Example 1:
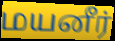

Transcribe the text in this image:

மயனீர்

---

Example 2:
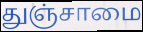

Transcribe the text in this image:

துஞ்சாமை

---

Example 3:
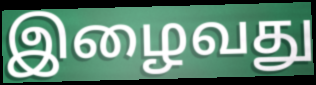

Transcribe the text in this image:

இழைவது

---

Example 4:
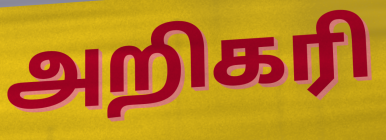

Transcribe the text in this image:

அறிகரி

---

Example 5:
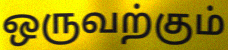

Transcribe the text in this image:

ஒருவற்கும்